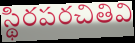
స్థిరపరచితివి